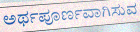
ಅರ್ಥಪೂರ್ಣವಾಗಿಸುವ